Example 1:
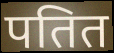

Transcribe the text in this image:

पतित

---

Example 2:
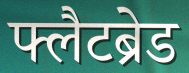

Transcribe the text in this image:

फ्लैटब्रेड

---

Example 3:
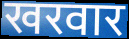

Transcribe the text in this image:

खरवार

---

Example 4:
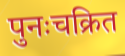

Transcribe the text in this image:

पुनःचक्रित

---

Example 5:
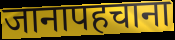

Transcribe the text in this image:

जानापहचाना